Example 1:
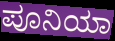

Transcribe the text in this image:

ಪೂನಿಯಾ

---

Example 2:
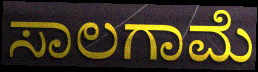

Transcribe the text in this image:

ಸಾಲಗಾಮೆ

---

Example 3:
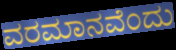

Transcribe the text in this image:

ವರಮಾನವೆಂದು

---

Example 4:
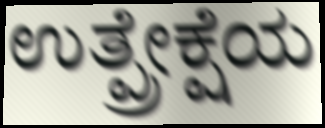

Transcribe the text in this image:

ಉತ್ಪ್ರೇಕ್ಷೆಯ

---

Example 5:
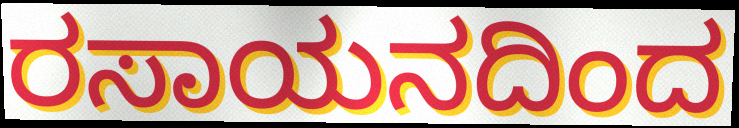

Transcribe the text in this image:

ರಸಾಯನದಿಂದ